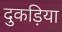
दुकड़िया